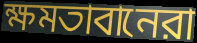
ক্ষমতাবানেরা